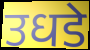
उधडे